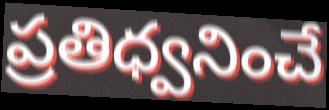
ప్రతిధ్వనించే